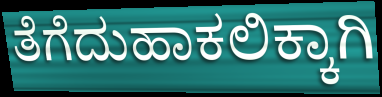
ತೆಗೆದುಹಾಕಲಿಕ್ಕಾಗಿ